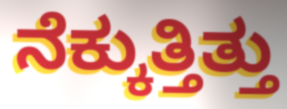
ನೆಕ್ಕುತ್ತಿತ್ತು